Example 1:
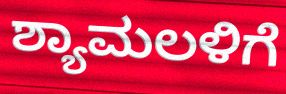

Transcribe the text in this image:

ಶ್ಯಾಮಲಳಿಗೆ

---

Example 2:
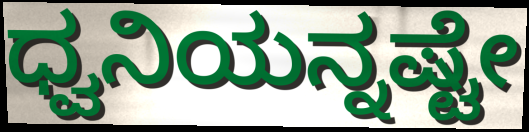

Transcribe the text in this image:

ಧ್ವನಿಯನ್ನಷ್ಟೇ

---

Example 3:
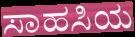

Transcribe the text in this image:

ಸಾಹಸಿಯ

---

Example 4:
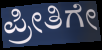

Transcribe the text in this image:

ಪ್ರೀತಿಗೇ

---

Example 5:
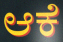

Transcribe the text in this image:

ಆಕೆ